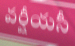
వర్షీయసీ